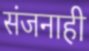
संजनाही